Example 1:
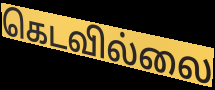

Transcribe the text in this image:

கெடவில்லை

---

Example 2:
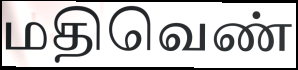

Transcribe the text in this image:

மதிவெண்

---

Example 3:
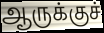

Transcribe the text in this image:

ஆருக்குச்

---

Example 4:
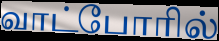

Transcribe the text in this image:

வாட்போரில்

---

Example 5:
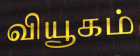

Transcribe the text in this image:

வியூகம்